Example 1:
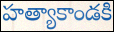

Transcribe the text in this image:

హత్యాకాండకి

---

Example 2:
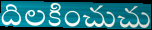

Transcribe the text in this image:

దిలకించుచు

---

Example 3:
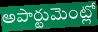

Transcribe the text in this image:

అపార్టుమెంట్లో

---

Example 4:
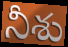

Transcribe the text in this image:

నీశు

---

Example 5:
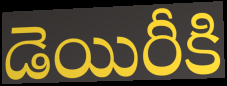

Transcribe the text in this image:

డెయిరీకి